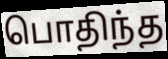
பொதிந்த